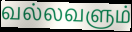
வல்லவளும்